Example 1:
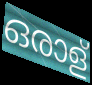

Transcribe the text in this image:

ഒരാള്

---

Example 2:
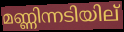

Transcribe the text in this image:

മണ്ണിന്നടിയില്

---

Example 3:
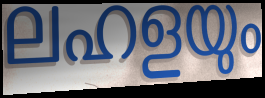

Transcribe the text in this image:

ലഹളയും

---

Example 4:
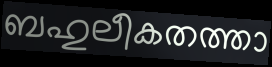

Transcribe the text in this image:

ബഹുലീകതത്താ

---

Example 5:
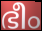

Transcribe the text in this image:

ഭീം